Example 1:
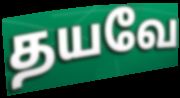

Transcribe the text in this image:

தயவே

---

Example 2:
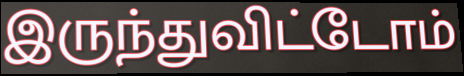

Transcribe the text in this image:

இருந்துவிட்டோம்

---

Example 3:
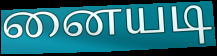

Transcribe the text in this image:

னையடி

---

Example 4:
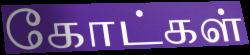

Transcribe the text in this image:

கோட்கள்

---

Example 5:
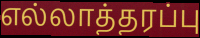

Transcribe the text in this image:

எல்லாத்தரப்பு